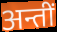
अन्तीं